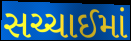
સચ્ચાઈમાં